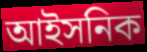
আইসনিক